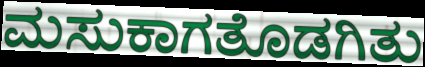
ಮಸುಕಾಗತೊಡಗಿತು